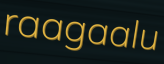
raagaalu